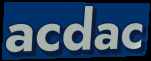
acdac